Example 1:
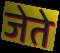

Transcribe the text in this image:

जेते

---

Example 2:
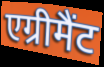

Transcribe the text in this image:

एग्रीमैंट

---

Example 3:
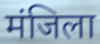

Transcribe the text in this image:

मंजिला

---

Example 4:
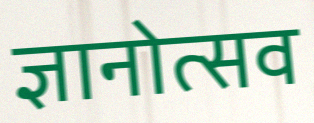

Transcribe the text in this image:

ज्ञानोत्सव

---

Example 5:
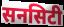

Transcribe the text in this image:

सनसिटी